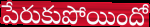
పేరుకుపోయిందో